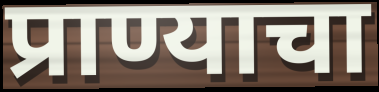
प्राण्याचा